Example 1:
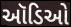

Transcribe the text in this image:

ઑડિઓ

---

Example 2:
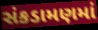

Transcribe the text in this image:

સંકડામણમાં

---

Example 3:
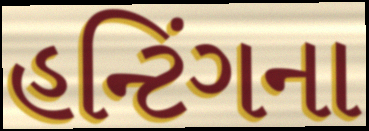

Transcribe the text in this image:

હન્ટિંગના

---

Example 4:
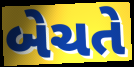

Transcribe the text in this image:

બેચતે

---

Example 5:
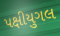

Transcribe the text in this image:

પક્ષીયુગલ